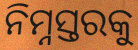
ନିମ୍ନସ୍ତରକୁ